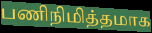
பணிநிமித்தமாக